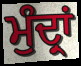
ਮੁੰਦ੍ਰਾਂ